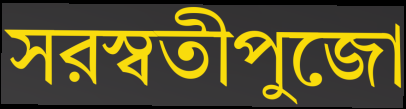
সরস্বতীপুজো